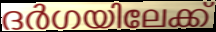
ദർഗയിലേക്ക്